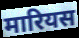
मारियस